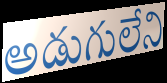
అడుగులేని